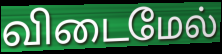
விடைமேல்